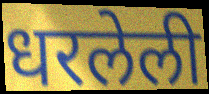
धरलेली